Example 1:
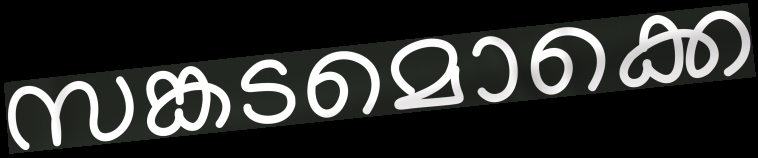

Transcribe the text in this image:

സങ്കടമൊക്കെ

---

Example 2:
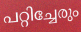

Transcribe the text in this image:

പറ്റിച്ചേരും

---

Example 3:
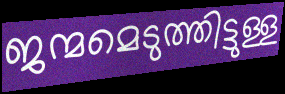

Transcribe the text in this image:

ജന്മമെടുത്തിട്ടുള്ള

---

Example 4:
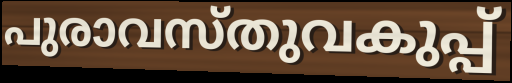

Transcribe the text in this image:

പുരാവസ്തുവകുപ്പ്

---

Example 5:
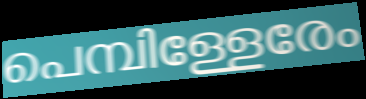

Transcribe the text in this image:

പെമ്പിള്ളേരേം